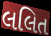
લલિત